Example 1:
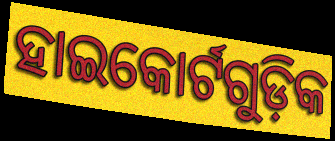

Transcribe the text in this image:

ହାଇକୋର୍ଟଗୁଡ଼ିକ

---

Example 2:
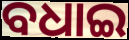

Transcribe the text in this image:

ବଧାଇ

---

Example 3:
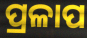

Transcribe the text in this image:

ପ୍ରଳାପ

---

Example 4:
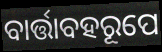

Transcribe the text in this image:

ବାର୍ତ୍ତାବହରୂପେ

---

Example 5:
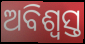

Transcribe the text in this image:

ଅବିଶ୍ୱସ୍ତ